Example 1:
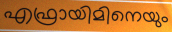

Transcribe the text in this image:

എഫ്രായിമിനെയും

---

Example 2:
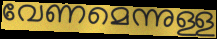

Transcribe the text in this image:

വേണമെന്നുള്ള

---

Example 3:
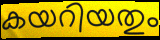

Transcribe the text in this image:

കയറിയതും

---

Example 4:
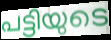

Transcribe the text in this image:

പട്ടിയുടെ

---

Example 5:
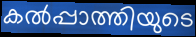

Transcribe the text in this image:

കൽപ്പാത്തിയുടെ